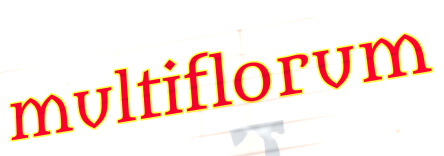
multiflorum